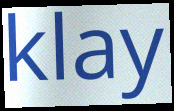
klay